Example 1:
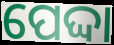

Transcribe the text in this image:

ପେଦ୍ଦା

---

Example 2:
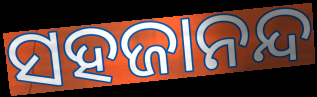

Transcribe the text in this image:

ସହଜାନନ୍ଦ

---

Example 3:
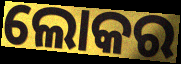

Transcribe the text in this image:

ଲୋକର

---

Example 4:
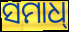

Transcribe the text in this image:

ସମାଧ୍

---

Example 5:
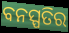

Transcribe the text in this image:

ବନସ୍ପତିର